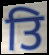
उि